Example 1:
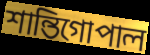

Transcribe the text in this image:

শান্তিগোপাল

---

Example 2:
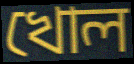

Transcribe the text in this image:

খোল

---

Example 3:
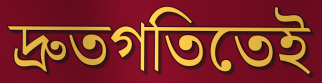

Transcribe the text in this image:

দ্রুতগতিতেই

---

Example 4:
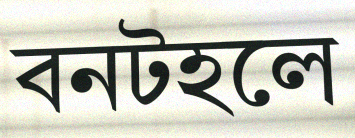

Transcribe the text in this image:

বনটহলে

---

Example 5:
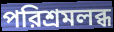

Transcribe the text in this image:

পরিশ্রমলব্ধ